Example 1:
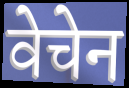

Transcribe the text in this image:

वेचेन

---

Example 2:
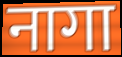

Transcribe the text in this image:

नागा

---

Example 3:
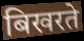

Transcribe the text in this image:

बिखरते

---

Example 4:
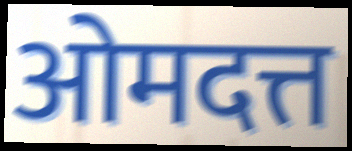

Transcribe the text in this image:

ओमदत्त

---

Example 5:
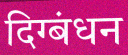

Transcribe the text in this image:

दिग्बंधन